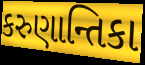
કરુણાન્તિકા